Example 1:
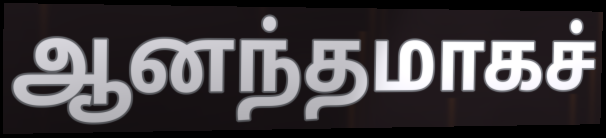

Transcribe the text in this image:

ஆனந்தமாகச்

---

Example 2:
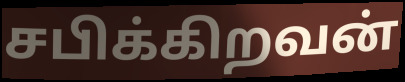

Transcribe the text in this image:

சபிக்கிறவன்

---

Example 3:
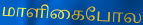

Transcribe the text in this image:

மாளிகைபோல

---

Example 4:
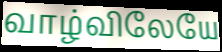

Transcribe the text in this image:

வாழ்விலேயே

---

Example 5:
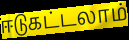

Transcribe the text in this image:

ஈடுகட்டலாம்